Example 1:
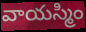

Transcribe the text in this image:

వాయస్మిం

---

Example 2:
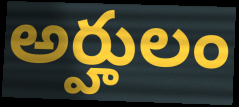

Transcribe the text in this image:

అర్హులం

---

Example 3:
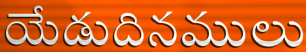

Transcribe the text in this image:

యేడుదినములు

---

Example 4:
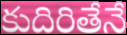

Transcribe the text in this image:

కుదిరితేనే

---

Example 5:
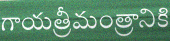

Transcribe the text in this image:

గాయత్రీమంత్రానికి